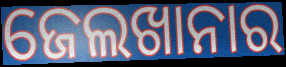
ଜେଲଖାନାର